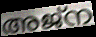
അജ്ന